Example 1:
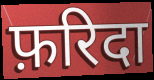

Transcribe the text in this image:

फ़रिदा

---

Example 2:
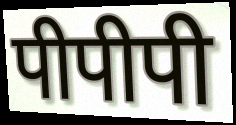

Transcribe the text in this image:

पीपीपी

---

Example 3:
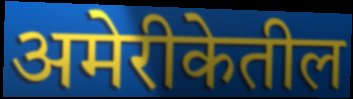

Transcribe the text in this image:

अमेरीकेतील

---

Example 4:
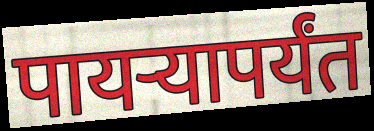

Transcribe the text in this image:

पायऱ्यापर्यंत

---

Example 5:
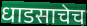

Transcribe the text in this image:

धाडसाचेच